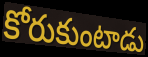
కోరుకుంటాడు